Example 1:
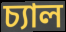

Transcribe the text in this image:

চ্যাল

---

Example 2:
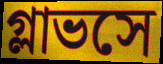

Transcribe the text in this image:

গ্লাভসে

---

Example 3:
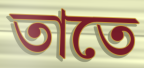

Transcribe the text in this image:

তাতে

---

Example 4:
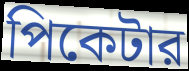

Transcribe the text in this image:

পিকেটার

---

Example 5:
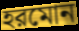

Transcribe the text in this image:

হরমোন